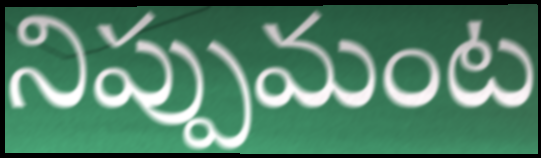
నిప్పుమంట